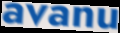
avanu